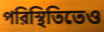
পরিস্থিতিতেও